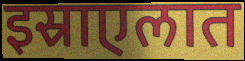
इस्राएलात